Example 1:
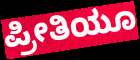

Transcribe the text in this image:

ಪ್ರೀತಿಯೂ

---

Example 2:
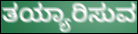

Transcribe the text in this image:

ತಯ್ಯಾರಿಸುವ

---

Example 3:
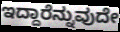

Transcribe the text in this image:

ಇದ್ದಾರೆನ್ನುವುದೇ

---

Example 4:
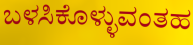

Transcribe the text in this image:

ಬಳಸಿಕೊಳ್ಳುವಂತಹ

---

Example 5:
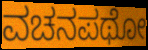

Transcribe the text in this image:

ವಚನಪಥೋ